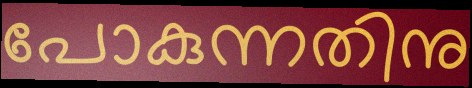
പോകുന്നതിനു